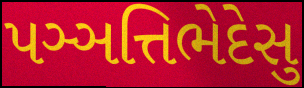
પઞ્ઞત્તિભેદેસુ